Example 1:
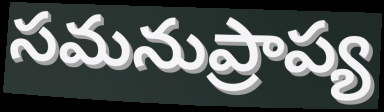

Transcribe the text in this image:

సమనుప్రాప్య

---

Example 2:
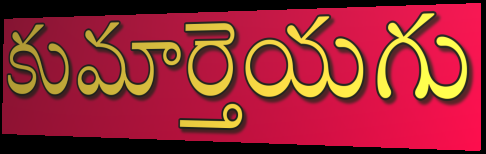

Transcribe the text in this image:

కుమార్తెయగు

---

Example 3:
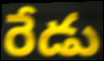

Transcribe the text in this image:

రేడు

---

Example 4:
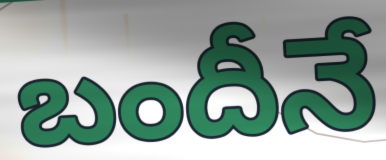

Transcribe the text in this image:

బందీనే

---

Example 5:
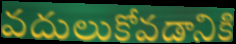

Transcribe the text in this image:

వదులుకోవడానికి